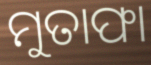
ମୁତାଫା